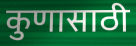
कुणासाठी